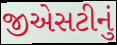
જીએસટીનું